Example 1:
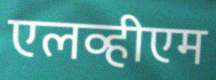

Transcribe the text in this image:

एलव्हीएम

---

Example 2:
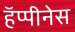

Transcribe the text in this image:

हॅप्पीनेस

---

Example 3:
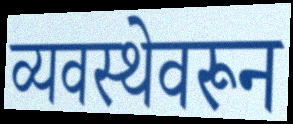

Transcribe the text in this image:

व्यवस्थेवरून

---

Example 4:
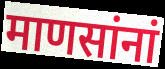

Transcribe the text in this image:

माणसांनां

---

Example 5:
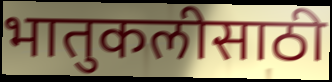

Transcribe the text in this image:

भातुकलीसाठी